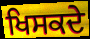
ਖਿਸਕਦੇ